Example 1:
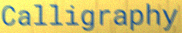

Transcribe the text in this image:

Calligraphy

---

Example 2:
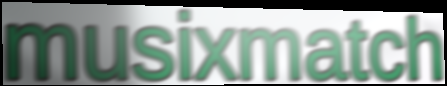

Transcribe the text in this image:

musixmatch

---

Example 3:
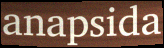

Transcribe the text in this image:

anapsida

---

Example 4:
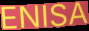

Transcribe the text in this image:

ENISA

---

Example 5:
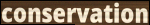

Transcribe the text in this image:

conservation